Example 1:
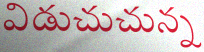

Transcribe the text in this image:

విడుచుచున్న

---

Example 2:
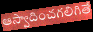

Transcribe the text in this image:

ఆస్వాదించగలిగితే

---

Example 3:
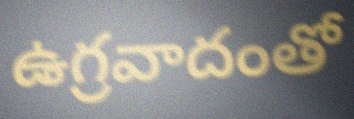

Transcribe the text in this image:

ఉగ్రవాదంతో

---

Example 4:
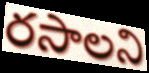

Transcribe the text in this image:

రసాలని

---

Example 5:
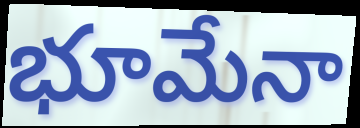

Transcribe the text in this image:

భూమేనా